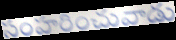
సంహరించువాడు